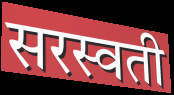
सरस्‍वती